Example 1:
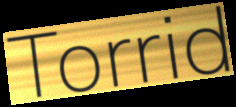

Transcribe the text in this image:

Torrid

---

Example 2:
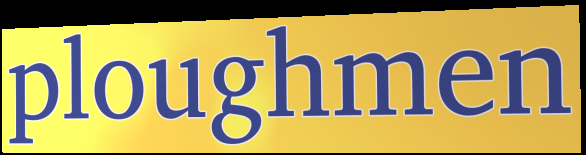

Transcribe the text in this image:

ploughmen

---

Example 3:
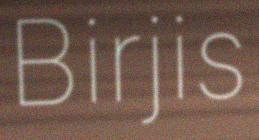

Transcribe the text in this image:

Birjis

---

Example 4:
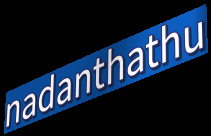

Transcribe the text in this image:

nadanthathu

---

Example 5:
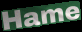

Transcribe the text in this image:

Hame